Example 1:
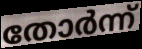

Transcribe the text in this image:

തോർന്ന്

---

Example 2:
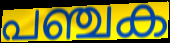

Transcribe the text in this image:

പഞ്ചക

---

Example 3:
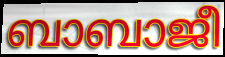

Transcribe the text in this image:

ബാബാജീ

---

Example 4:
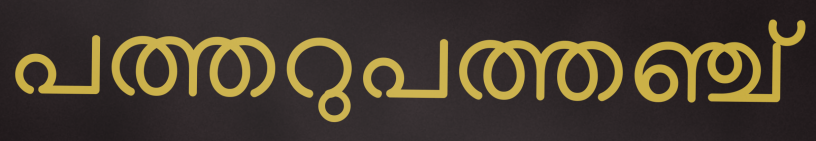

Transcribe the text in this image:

പത്തറുപത്തഞ്ച്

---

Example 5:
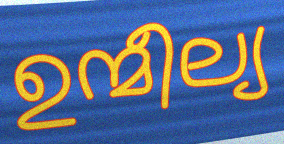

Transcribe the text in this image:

ഉന്മീല്യ